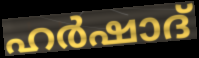
ഹർഷാദ്